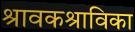
श्रावकश्राविका